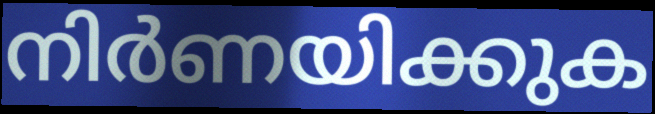
നിർണയിക്കുക